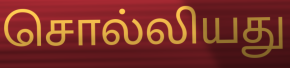
சொல்லியது